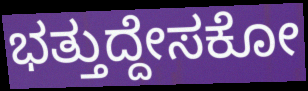
ಭತ್ತುದ್ದೇಸಕೋ